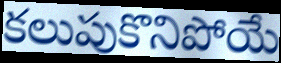
కలుపుకొనిపోయే